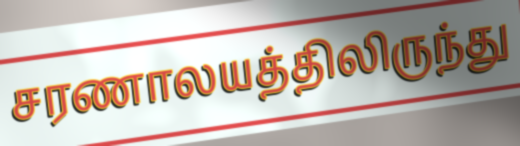
சரணாலயத்திலிருந்து